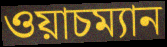
ওয়াচম্যান